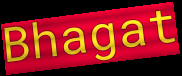
Bhagat